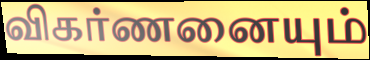
விகர்ணனையும்